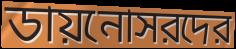
ডায়নোসরদের